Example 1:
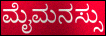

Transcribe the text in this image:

ಮೈಮನಸ್ಸು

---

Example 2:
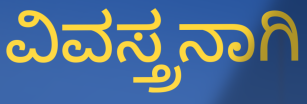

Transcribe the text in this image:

ವಿವಸ್ತ್ರನಾಗಿ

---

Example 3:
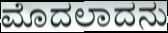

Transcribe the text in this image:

ಮೊದಲಾದನು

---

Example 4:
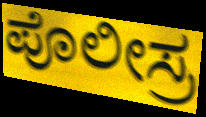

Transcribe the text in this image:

ಪೊಲೀಸ್ರ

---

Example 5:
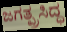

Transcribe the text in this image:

ಜಗತ್ಪ್ರಸಿದ್ಧ